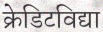
क्रेडिटविद्या